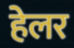
हेलर